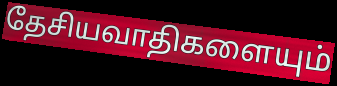
தேசியவாதிகளையும்